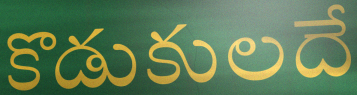
కొడుకులదే